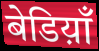
बेडिय़ाँ